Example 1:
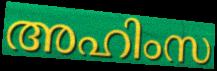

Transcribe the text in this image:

അഹിംസ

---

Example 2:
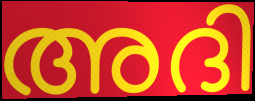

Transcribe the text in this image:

അദി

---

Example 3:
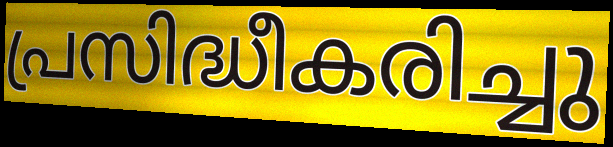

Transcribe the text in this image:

പ്രസിദ്ധീകരിച്ചു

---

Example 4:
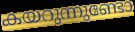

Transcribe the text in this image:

കയറുന്നുണ്ടോ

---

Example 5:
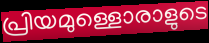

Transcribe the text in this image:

പ്രിയമുള്ളൊരാളുടെ